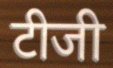
टीजी